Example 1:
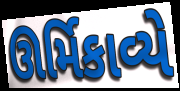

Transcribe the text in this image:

ઊર્મિકાવ્યે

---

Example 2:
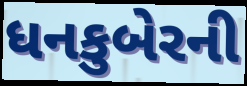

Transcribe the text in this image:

ધનકુબેરની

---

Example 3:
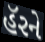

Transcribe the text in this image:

હૅરને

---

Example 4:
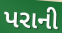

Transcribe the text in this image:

પરાની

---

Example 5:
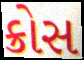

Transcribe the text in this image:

ક્રોસ